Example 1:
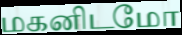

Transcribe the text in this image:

மகனிடமோ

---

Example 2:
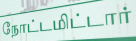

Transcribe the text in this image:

நோட்டமிட்டார்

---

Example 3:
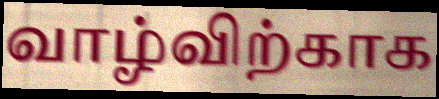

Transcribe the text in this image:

வாழ்விற்காக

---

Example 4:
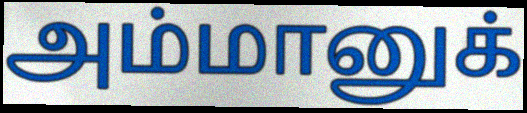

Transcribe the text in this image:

அம்மானுக்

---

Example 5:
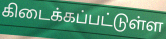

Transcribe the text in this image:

கிடைக்கப்பட்டுள்ள